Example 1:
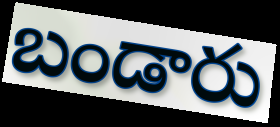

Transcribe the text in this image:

బండారు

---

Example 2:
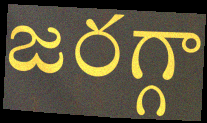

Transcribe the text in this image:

జరగ్గా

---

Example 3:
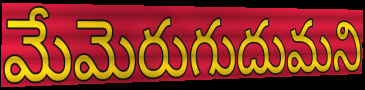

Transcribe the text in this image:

మేమెరుగుదుమని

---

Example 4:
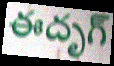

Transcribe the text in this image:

ఈదృగ్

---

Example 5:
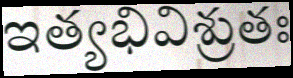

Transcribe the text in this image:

ఇత్యభివిశ్రుతః